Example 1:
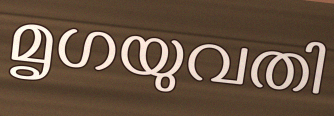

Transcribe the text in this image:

മൃഗയുവതി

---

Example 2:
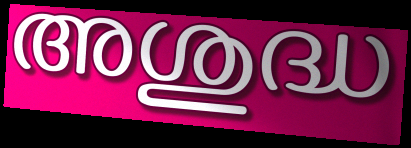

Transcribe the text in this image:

അശുദ്ധ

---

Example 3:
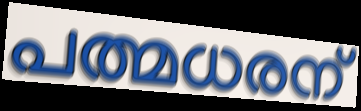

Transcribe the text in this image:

പത്മധരന്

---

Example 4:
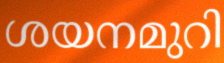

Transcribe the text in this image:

ശയനമുറി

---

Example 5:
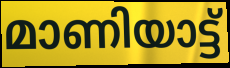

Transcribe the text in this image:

മാണിയാട്ട്